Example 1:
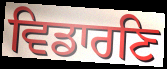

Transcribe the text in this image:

ਵਿਡਾਰਣਿ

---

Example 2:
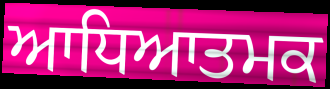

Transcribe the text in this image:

ਆਧਿਆਤਮਕ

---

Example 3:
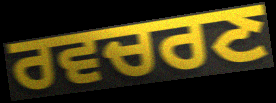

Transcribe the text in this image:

ਰਵਚਰਣ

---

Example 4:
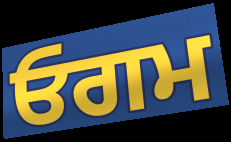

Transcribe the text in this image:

ਓਗਮ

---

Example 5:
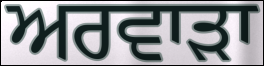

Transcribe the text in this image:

ਅਰਵਾੜਾ